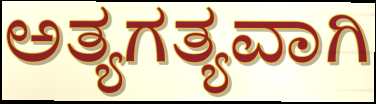
ಅತ್ಯಗತ್ಯವಾಗಿ